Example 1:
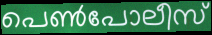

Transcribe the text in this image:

പെൺപോലീസ്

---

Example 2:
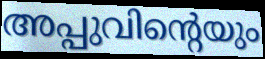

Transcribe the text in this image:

അപ്പുവിന്റെയും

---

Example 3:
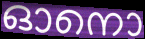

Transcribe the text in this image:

ഓനൊ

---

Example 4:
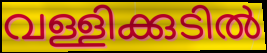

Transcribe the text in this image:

വള്ളിക്കുടിൽ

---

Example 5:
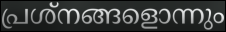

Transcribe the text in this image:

പ്രശ്നങ്ങളൊന്നും